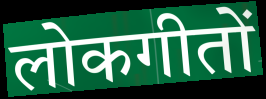
लोकगीतों